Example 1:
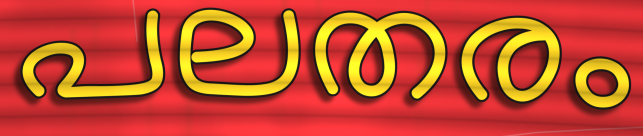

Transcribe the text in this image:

പലതരം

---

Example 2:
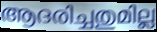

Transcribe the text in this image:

ആദരിച്ചതുമില്ല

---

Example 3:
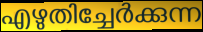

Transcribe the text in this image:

എഴുതിച്ചേർക്കുന്ന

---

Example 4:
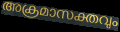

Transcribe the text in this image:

അക്രമാസക്തവും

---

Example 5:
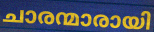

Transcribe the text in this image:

ചാരന്മാരായി